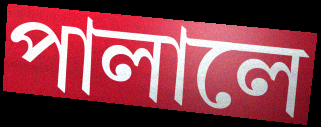
পালালে